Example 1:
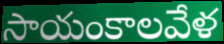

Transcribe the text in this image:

సాయంకాలవేళ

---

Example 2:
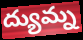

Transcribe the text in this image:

ద్యుమ్న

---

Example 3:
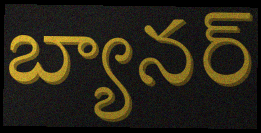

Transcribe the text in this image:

బ్యానర్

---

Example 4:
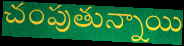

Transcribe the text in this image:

చంపుతున్నాయి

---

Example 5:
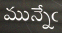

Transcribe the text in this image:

మున్నేఁ